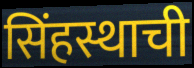
सिंहस्थाची